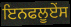
ਇਨਫਲੂਏਂਸ